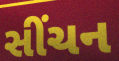
સીંચન